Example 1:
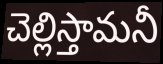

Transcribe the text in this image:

చెల్లిస్తామనీ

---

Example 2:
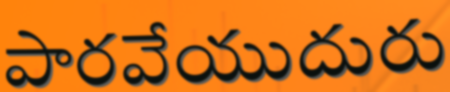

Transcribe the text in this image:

పారవేయుదురు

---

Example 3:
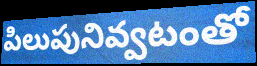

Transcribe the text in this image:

పిలుపునివ్వటంతో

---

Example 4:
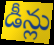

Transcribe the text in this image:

డీన్లు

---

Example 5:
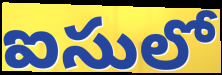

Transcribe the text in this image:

ఐసులో